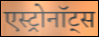
एस्ट्रोनॉट्स